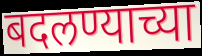
बदलण्याच्या